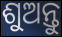
ଶୁଅନ୍ତୁ